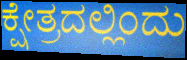
ಕ್ಷೇತ್ರದಲ್ಲಿಂದು